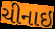
ચીનાઇ